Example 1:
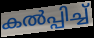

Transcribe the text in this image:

കൽപ്പിച്ച്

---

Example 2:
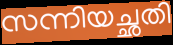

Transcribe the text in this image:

സന്നിയച്ഛതി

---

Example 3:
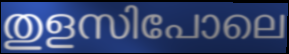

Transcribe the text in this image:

തുളസിപോലെ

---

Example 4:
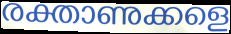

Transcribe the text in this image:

രക്താണുക്കളെ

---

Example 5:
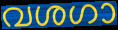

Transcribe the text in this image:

വശഗാ